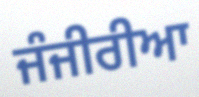
ਜੰਜੀਰੀਆ